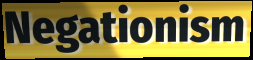
Negationism